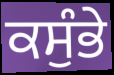
ਕਸੁੰਭੇ